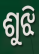
ଶୁଝି